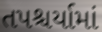
તપશ્ચર્યામાં